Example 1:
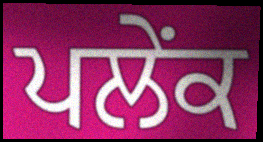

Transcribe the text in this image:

ਪਲੇਂਕ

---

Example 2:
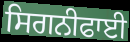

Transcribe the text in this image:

ਸਿਗਨੀਫਾਈ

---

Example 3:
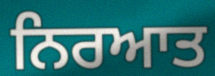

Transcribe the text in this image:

ਨਿਰਆਤ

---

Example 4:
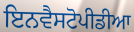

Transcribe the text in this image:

ਇਨਵੈਸਟੋਪੀਡੀਆ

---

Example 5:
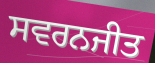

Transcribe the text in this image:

ਸਵਰਨਜੀਤ